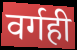
वर्गही